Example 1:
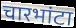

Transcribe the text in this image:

चारभांटा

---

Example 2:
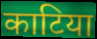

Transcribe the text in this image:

काटिया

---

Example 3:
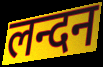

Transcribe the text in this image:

लन्दन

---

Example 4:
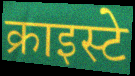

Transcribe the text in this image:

क्राइस्टे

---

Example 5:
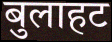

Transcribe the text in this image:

बुलाहट